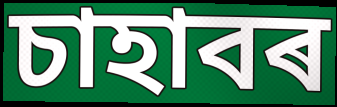
চাহাবৰ